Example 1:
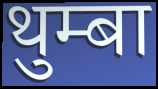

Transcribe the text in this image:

थुम्बा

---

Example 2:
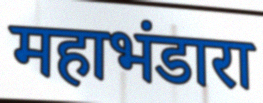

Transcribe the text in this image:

महाभंडारा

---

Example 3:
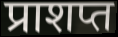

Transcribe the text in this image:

प्राशप्त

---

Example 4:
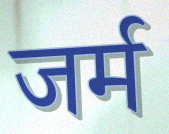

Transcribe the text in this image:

जर्म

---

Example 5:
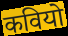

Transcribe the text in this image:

कवियो